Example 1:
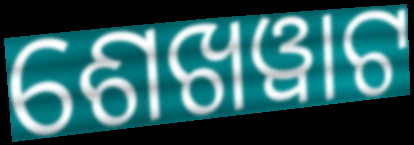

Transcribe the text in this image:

ଶେଖୱାଟ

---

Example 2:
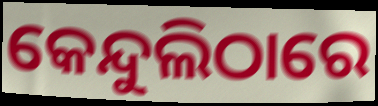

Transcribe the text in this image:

କେନ୍ଦୁଲିଠାରେ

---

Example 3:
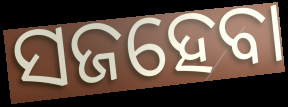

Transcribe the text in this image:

ସଜହେବା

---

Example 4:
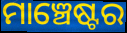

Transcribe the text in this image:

ମାଞ୍ଚେଷ୍ଟର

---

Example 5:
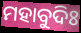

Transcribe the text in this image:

ମହାବୁଦିଃ